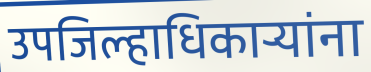
उपजिल्हाधिकाऱ्यांना